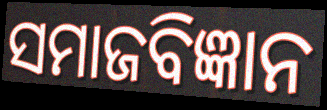
ସମାଜବିଜ୍ଞାନ